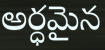
అర్ధమైన